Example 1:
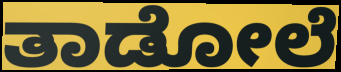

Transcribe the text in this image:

ತಾಡೋಲೆ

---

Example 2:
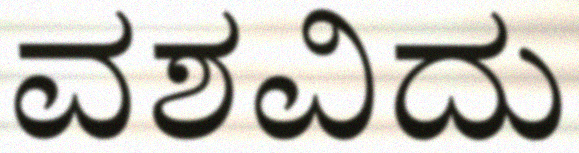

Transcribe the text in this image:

ವಶವಿದು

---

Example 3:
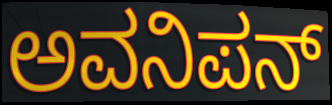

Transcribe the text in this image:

ಅವನಿಪನ್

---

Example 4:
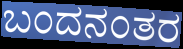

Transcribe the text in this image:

ಬಂದನಂತರ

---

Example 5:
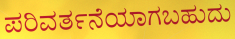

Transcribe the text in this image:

ಪರಿವರ್ತನೆಯಾಗಬಹುದು